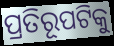
ପ୍ରତିରୂପଟିକୁ